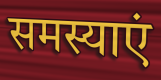
समस्याएं